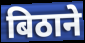
बिठाने